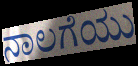
ನಾಲಗೆಯು